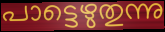
പാട്ടെഴുതുന്നു